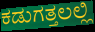
ಕಡುಗತ್ತಲಲ್ಲಿ